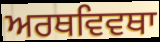
ਅਰਥਵਿਵਥਾ